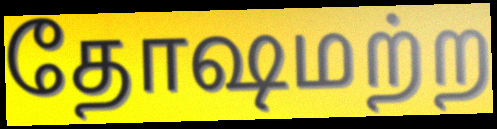
தோஷமற்ற